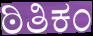
ಠಿತಿಕಂ